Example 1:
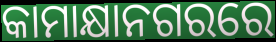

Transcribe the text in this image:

କାମାକ୍ଷାନଗରରେ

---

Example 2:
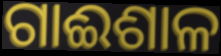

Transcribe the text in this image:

ଗାଈଶାଳ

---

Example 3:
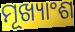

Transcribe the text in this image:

ମୂଖ୍ୟାଂଶ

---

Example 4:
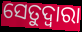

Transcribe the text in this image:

ସେତୁଦ୍ୱାରା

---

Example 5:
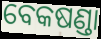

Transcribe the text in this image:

ବେକଷଣ୍ଡା